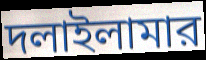
দলাইলামার